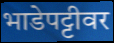
भाडेपट्टीवर